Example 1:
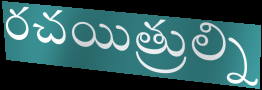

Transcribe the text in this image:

రచయిత్రుల్ని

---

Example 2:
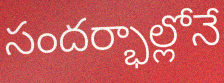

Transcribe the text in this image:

సందర్భాల్లోనే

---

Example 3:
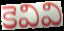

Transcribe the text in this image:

కెవివి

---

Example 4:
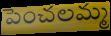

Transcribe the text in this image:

పెంచలమ్మ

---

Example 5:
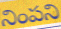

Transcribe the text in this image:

నింపని